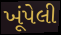
ખૂંપેલી